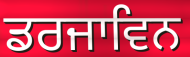
ਡਰਜਾਵਿਨ